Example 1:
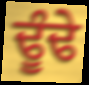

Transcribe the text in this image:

ਢੂੰਢੇ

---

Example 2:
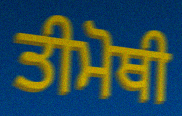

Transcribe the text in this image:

ਤੀਮੋਥੀ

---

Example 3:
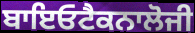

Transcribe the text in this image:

ਬਾਇਓਟੈਕਨਾਲੋਜੀ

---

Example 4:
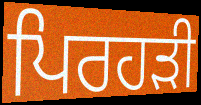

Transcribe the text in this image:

ਪਿਰਹੜੀ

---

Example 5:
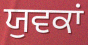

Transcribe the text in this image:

ਯੁਵਕਾਂ